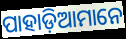
ପାହାଡ଼ିଆମାନେ